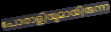
പോരാളിയുമായിരുന്ന